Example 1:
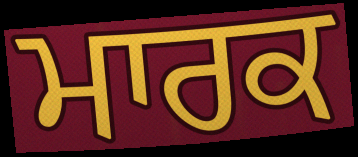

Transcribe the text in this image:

ਮਾਰਕ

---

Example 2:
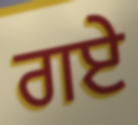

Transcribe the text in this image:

ਗਏ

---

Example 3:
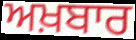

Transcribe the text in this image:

ਅਖ਼ਬਾਰ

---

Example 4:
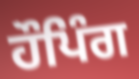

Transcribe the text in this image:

ਹੌਪਿੰਗ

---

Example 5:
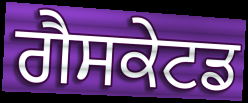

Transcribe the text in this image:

ਗੈਸਕੇਟਡ